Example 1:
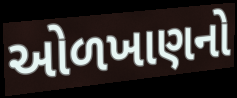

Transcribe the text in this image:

ઓળખાણનો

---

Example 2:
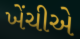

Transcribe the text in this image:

ખેંચીએ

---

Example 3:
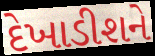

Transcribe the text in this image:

દેખાડીશને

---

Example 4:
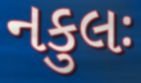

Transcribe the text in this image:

નકુલઃ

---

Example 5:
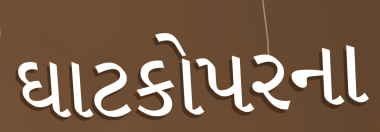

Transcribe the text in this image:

ઘાટકોપરના